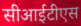
सीआईटीएस